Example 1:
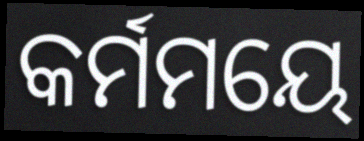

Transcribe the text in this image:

କର୍ମମୟେ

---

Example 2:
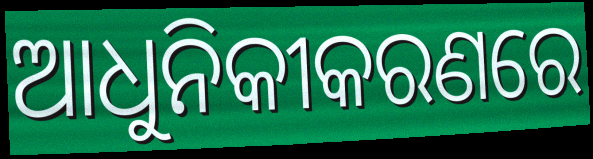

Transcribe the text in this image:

ଆଧୁନିକୀକରଣରେ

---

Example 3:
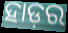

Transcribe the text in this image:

ହାଡ଼ର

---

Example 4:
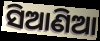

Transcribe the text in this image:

ସିଆଣିଆ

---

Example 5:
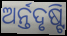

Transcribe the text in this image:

ଅର୍ନ୍ତଦୃଷ୍ଟି